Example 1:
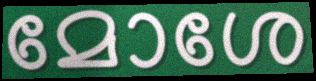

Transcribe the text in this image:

മോശേ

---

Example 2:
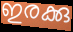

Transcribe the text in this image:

ഇരക്കു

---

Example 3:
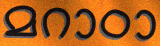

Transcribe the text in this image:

മറാഠാ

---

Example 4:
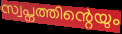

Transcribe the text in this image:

സ്വപ്നത്തിന്റെയും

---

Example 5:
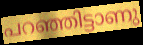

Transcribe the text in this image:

പറഞ്ഞിട്ടാണു